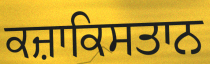
ਕਜ਼ਾਕਿਸਤਾਨ